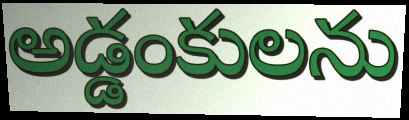
అడ్డంకులను